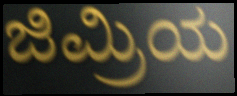
ಜಿಮ್ರಿಯ